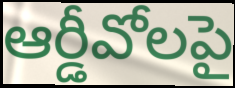
ఆర్డీవోలపై